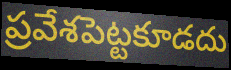
ప్రవేశపెట్టకూడదు